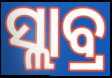
ସ୍ଲାବ୍ର